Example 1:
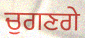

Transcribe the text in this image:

ਚੁਗਣਗੇ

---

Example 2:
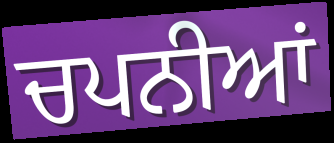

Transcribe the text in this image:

ਚਪਨੀਆਂ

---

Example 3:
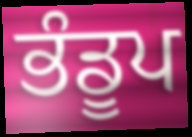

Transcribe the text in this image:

ਭੰਡੂਪ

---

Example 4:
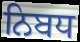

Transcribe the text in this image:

ਨਿਬਧ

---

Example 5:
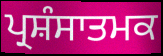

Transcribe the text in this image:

ਪ੍ਰਸ਼ੰਸਾਤਮਕ